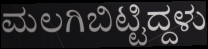
ಮಲಗಿಬಿಟ್ಟಿದ್ದಳು